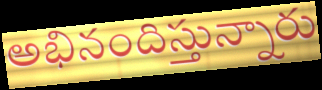
అభినందిస్తున్నారు